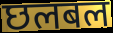
छलबल